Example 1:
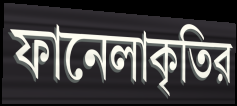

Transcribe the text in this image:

ফানেলাকৃতির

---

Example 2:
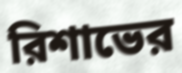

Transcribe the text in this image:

রিশাভের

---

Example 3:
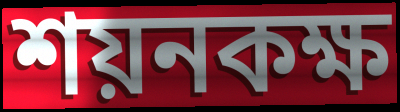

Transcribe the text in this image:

শয়নকক্ষ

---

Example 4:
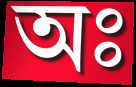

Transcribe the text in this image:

অঃ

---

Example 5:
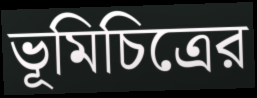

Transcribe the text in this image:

ভূমিচিত্রের